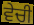
ਵੇਚੀ